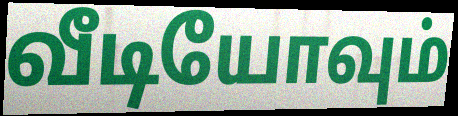
வீடியோவும்